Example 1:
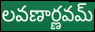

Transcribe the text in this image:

లవణార్ణవమ్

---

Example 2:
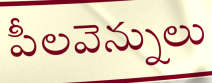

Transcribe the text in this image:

పీలవెన్నులు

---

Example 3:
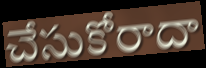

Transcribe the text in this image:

చేసుకోరాదా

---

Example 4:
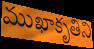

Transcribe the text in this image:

ముఖాకృతిని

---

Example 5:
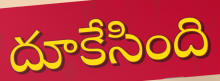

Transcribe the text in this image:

దూకేసింది